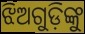
ଝିଅଗୁଡ଼ିଙ୍କୁ